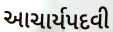
આચાર્યપદવી